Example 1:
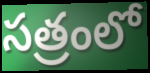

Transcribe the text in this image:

సత్రంలో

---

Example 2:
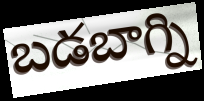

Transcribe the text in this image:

బడబాగ్ని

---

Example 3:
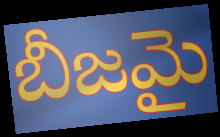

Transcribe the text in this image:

బీజమై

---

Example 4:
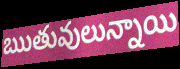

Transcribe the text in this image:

ఋతువులున్నాయి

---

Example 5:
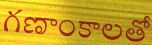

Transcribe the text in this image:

గణాంకాలతో